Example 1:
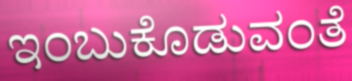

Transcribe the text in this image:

ಇಂಬುಕೊಡುವಂತೆ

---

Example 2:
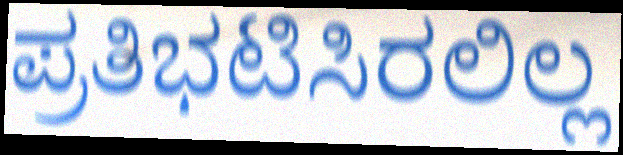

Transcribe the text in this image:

ಪ್ರತಿಭಟಿಸಿರಲಿಲ್ಲ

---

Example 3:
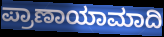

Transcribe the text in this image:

ಪ್ರಾಣಾಯಾಮಾದಿ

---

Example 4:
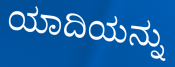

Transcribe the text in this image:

ಯಾದಿಯನ್ನು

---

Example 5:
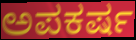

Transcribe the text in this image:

ಅಪಕರ್ಷ